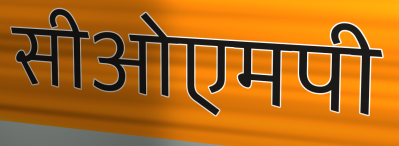
सीओएमपी